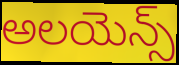
అలయెన్స్